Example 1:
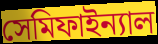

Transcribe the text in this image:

সেমিফাইন্যাল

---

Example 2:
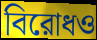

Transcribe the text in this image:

বিরোধও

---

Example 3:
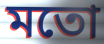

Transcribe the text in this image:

মতো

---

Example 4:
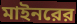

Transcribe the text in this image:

মাইনরের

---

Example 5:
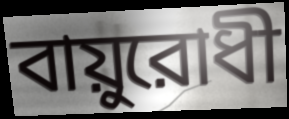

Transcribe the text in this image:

বায়ুরোধী